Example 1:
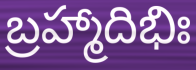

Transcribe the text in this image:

బ్రహ్మాదిభిః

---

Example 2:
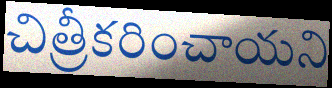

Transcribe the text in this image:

చిత్రీకరించాయని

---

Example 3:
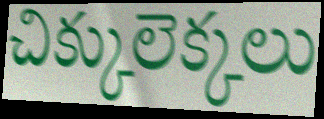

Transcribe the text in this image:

చిక్కులెక్కలు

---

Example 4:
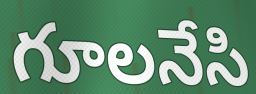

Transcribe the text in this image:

గూలనేసి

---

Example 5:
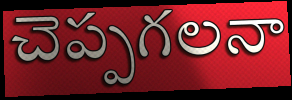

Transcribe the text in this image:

చెప్పగలనా